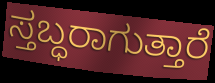
ಸ್ತಬ್ಧರಾಗುತ್ತಾರೆ